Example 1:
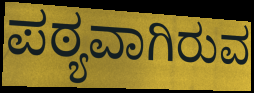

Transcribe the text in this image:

ಪಠ್ಯವಾಗಿರುವ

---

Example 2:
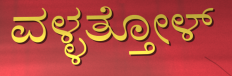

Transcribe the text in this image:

ವಳ್ಳತ್ತೋಳ್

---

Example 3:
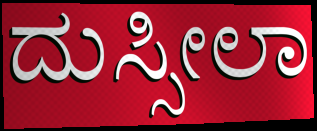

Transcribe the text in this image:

ದುಸ್ಸೀಲಾ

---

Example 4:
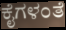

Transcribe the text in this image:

ಕೈಗಳಂತೆ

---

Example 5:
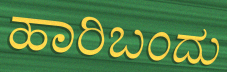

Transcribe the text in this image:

ಹಾರಿಬಂದು